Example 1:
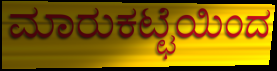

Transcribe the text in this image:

ಮಾರುಕಟ್ಟೆಯಿಂದ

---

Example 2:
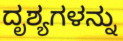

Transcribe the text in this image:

ದೃಶ್ಯಗಳನ್ನು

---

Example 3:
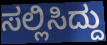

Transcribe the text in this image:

ಸಲ್ಲಿಸಿದ್ದು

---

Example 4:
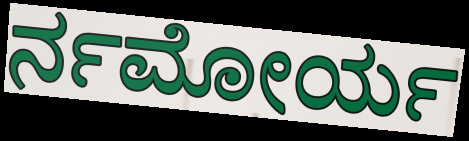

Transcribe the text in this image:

ರ್ನಮೋರ್ಯ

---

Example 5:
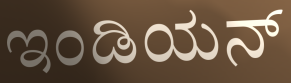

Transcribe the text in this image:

ಇಂಡಿಯನ್